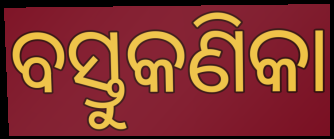
ବସ୍ତୁକଣିକା